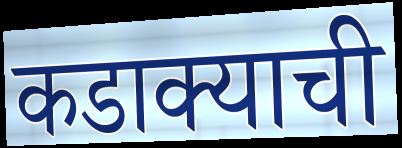
कडाक्याची